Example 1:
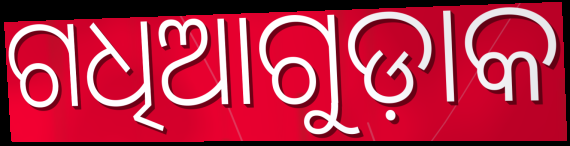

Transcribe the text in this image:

ଗଧିଆଗୁଡ଼ାକ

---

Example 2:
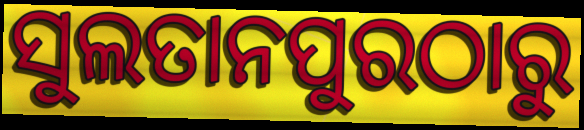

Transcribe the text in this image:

ସୁଲତାନପୁରଠାରୁ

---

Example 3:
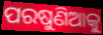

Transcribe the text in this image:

ପରଷୁଣିଆକୁ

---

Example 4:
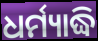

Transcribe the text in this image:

ଧର୍ମ୍ୟାଦ୍ଧି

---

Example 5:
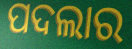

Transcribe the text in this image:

ପଦଲାର